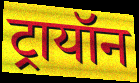
ट्रायॉन